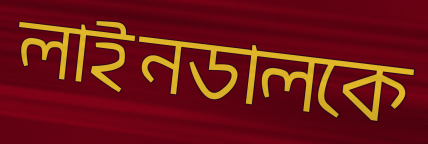
লাইনডালকে